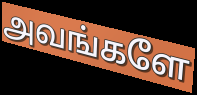
அவங்களே